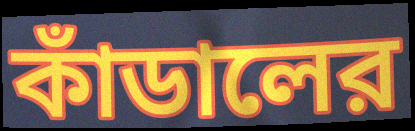
কাঁডালের